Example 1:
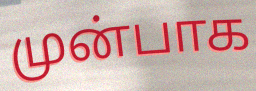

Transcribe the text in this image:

முன்பாக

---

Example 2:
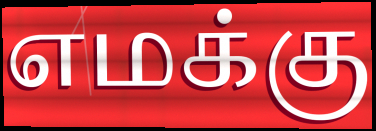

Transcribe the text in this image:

எமக்கு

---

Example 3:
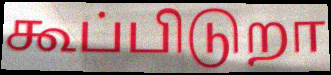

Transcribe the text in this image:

கூப்பிடுறா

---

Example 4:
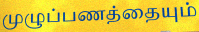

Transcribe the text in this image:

முழுப்பணத்தையும்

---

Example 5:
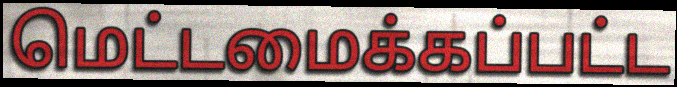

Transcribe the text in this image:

மெட்டமைக்கப்பட்ட